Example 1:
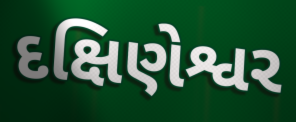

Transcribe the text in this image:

દક્ષિણેશ્વર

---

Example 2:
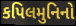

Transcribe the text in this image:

કપિલમુનિનો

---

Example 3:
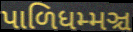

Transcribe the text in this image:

પાળિધમ્મઞ્ચ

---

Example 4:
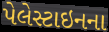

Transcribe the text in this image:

પેલેસ્ટાઇનના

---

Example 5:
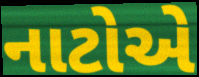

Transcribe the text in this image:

નાટોએ